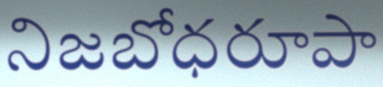
నిజబోధరూపా